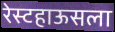
रेस्टहाऊसला